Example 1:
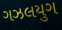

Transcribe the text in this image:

ગઝલયુગ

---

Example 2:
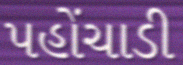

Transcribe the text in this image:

પહોંચાડી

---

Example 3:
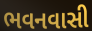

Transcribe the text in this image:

ભવનવાસી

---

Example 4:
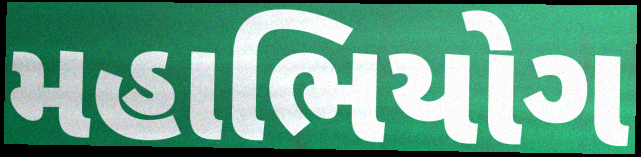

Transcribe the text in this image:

મહાભિયોગ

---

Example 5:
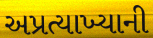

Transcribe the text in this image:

અપ્રત્યાખ્યાની